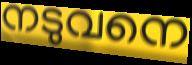
നടുവനെ